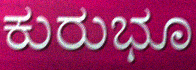
ಕುರುಭೂ